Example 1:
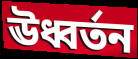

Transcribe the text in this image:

ঊধ্বর্তন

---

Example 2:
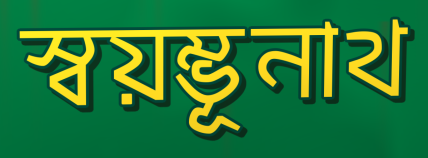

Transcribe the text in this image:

স্বয়ম্ভূনাথ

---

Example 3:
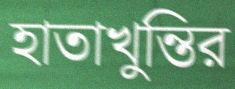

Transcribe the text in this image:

হাতাখুন্তির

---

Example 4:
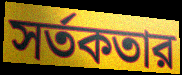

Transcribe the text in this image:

সর্তকতার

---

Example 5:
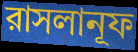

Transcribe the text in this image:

রাসলানূফ